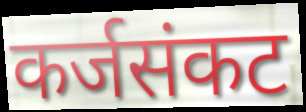
कर्जसंकट